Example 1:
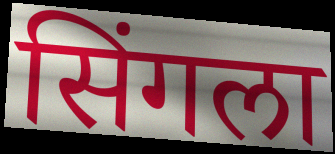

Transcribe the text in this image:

सिंगला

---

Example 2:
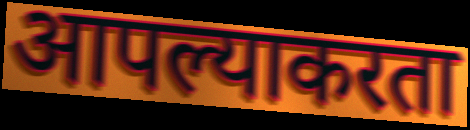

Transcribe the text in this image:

आपल्याकरता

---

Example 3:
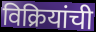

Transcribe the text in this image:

विक्रियांची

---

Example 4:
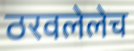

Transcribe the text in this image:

ठरवलेलेच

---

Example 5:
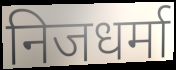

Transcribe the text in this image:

निजधर्मा